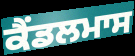
ਕੈਂਡਲਮਾਸ